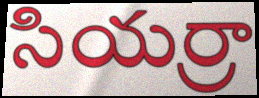
సియర్రా